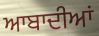
ਆਬਾਦੀਆਂ